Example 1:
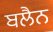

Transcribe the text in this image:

ਬਲੈਨ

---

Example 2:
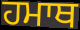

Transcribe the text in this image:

ਹਮਾਥ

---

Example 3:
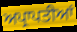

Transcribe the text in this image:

ਅਪ੍ਰਾਪਤੀਆਂ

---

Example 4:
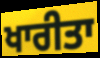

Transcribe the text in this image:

ਖਾਰੀਤਾ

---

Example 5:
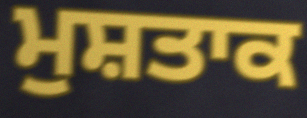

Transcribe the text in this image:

ਮੁਸ਼ਤਾਕ